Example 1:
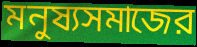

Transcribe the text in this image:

মনুষ্যসমাজের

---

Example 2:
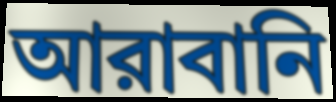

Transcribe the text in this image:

আরাবানি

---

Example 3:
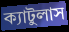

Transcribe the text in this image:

ক্যাটুলাস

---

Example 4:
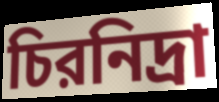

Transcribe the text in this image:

চিরনিদ্রা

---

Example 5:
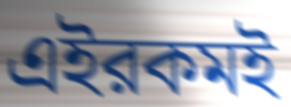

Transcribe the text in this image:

এইরকমই